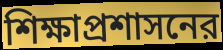
শিক্ষাপ্রশাসনের